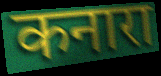
कनारा